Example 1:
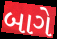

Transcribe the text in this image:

બાગે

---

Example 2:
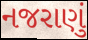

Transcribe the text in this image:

નજરાણું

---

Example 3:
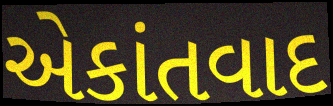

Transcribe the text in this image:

એકાંતવાદ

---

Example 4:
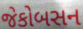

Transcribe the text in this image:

જેકોબસન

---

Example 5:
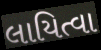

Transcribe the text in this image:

લાયિત્વા